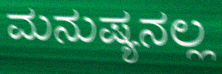
ಮನುಷ್ಯನಲ್ಲ